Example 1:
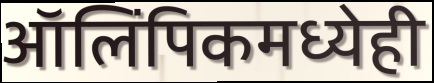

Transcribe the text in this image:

ऑलिंपिकमध्येही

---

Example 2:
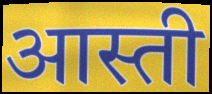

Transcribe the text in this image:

आस्ती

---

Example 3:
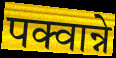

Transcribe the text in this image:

पक्वान्ने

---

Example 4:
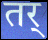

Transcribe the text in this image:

तर्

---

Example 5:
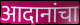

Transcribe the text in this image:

आदानांचा